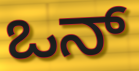
ಒನ್